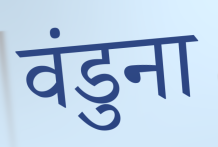
वंडुना